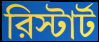
রিস্টার্ট